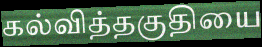
கல்வித்தகுதியை